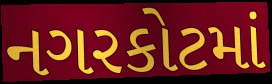
નગરકોટમાં